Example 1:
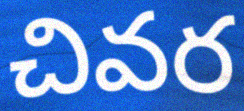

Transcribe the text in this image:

చివర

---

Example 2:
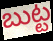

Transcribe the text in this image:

బుట్ట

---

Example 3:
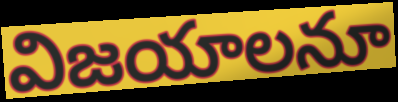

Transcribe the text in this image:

విజయాలనూ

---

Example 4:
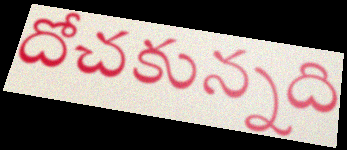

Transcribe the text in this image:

దోచకున్నది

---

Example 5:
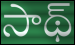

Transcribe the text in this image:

సాథ్